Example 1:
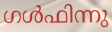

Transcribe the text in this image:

ഗൾഫിന്നു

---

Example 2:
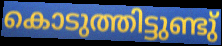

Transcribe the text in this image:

കൊടുത്തിട്ടുണ്ടു്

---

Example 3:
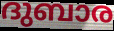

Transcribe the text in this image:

ദുബാര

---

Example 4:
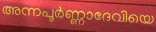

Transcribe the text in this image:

അന്നപൂർണ്ണാദേവിയെ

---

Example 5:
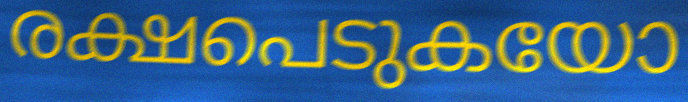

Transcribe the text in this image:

രക്ഷപെടുകയോ